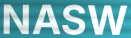
NASW